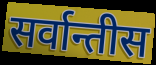
सर्वान्तीस